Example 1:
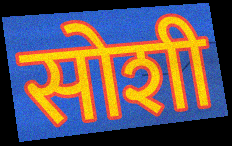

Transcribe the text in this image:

सोशी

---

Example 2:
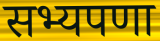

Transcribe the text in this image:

सभ्यपणा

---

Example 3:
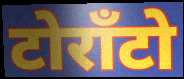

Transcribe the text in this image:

टोरॉंटो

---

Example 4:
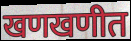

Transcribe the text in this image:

खणखणीत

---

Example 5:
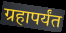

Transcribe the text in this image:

ग्रहापर्यंत